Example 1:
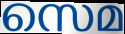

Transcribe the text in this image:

സെമ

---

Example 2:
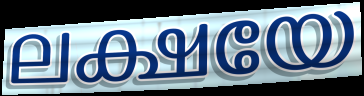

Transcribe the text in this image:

ലക്ഷയേ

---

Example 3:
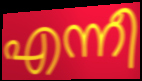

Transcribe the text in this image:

എന്നീ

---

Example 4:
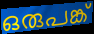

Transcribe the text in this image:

ഒരുപങ്ക്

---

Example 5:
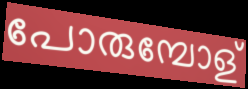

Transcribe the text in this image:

പോരുമ്പോള്